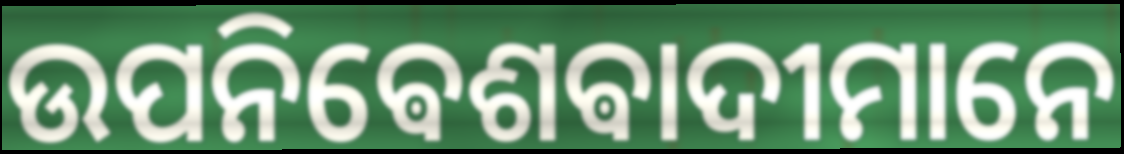
ଉପନିଵେଶଵାଦୀମାନେ